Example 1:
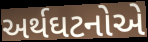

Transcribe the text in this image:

અર્થઘટનોએ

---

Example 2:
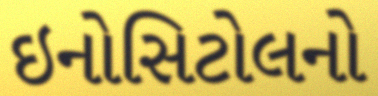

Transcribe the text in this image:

ઇનોસિટોલનો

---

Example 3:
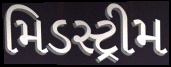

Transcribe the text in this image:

મિડસ્ટ્રીમ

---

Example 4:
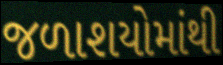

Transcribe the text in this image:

જળાશયોમાંથી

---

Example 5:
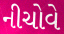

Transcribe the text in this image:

નીચોવે